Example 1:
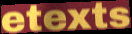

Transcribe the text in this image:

etexts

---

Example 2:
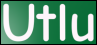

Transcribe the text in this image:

Utlu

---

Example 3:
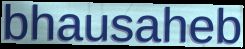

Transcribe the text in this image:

bhausaheb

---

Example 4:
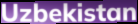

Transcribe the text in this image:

Uzbekistan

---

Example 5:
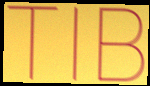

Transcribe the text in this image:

TIB